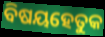
ବିଷୟହେତୁକ